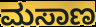
ಮಸಾಣ